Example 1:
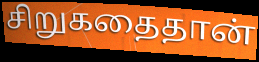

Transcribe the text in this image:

சிறுகதைதான்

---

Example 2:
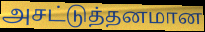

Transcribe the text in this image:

அசட்டுத்தனமான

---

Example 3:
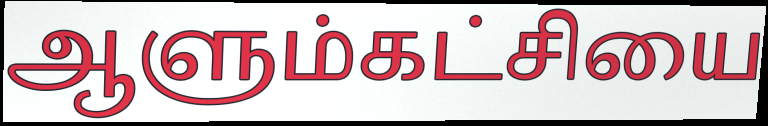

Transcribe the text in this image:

ஆளும்கட்சியை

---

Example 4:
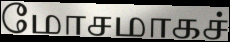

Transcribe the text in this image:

மோசமாகச்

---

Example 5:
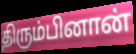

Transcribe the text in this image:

திரும்பினான்